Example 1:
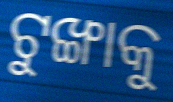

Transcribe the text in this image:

ଟୁଙ୍ଖାକୁ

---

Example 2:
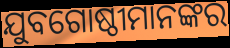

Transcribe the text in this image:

ଯୁବଗୋଷ୍ଠୀମାନଙ୍କର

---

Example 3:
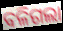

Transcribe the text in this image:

ବଳିଗଲା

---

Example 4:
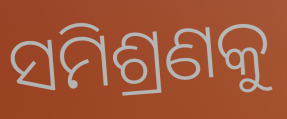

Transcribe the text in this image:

ସମିଶ୍ରଣକୁ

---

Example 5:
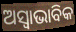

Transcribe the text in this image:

ଅସ୍ଵାଭାବିକ